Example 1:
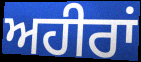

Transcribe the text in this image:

ਅਹੀਰਾਂ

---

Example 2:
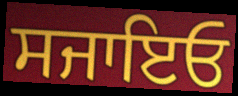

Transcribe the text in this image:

ਸਜਾਇਓ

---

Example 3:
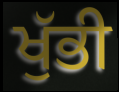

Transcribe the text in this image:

ਖੁੱਭੀ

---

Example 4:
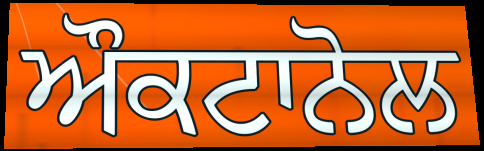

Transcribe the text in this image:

ਔਕਟਾਨੋਲ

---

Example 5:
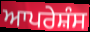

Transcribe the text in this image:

ਆਪਰੇਸ਼ੰਸ